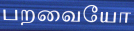
பறவையோ